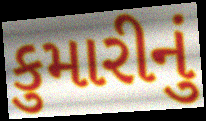
કુમારીનું